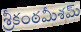
శ్రీకంఠమీశమ్